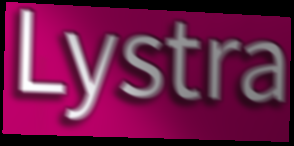
Lystra